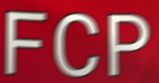
FCP